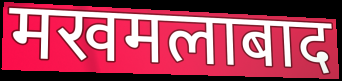
मखमलाबाद